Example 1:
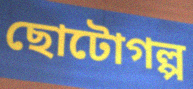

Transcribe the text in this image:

ছোটোগল্প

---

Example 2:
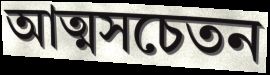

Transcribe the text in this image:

আত্মসচেতন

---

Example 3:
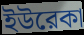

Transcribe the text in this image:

ইউরেকা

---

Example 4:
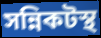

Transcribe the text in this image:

সন্নিকটস্থ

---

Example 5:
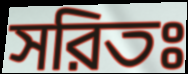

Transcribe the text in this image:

সরিতঃ